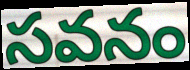
సవనం